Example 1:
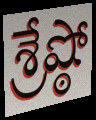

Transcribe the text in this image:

శ్రేష్ఠో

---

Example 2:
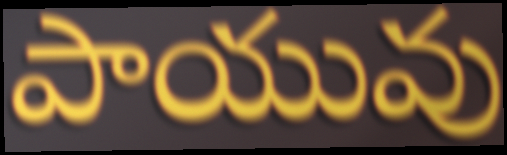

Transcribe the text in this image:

పాయువు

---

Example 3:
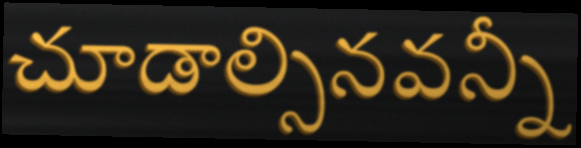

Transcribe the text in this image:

చూడాల్సినవన్నీ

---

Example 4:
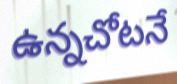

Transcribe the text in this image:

ఉన్నచోటనే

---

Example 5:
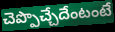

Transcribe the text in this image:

చెప్పొచ్చేదేంటంటే